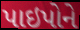
પાઇપોને